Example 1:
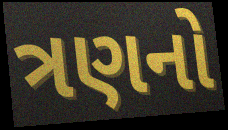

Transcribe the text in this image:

ત્રણનો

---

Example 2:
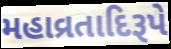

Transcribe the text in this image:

મહાવ્રતાદિરૂપે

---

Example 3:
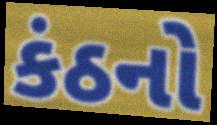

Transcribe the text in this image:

કંઠનો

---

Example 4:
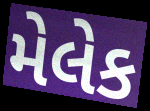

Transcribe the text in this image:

મેલેક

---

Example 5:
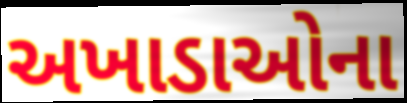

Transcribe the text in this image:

અખાડાઓના